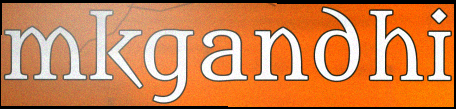
mkgandhi